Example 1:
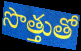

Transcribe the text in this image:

సొత్తుతో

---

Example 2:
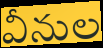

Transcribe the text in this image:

వీనుల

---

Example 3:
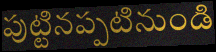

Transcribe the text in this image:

పుట్టినప్పటినుండి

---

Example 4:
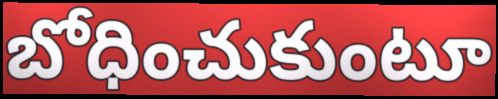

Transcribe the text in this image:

బోధించుకుంటూ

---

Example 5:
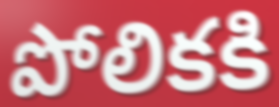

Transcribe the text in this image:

పోలికకి